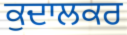
ਕੁਦਾਲਕਰ